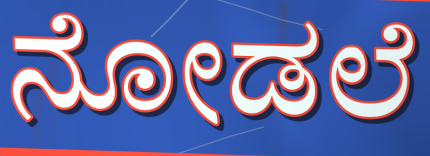
ನೋಡಲೆ